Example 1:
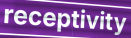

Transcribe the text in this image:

receptivity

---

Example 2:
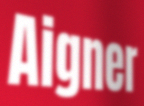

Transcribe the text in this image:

Aigner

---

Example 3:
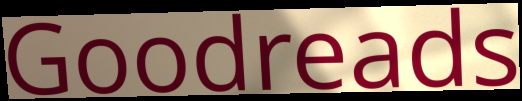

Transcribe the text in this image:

Goodreads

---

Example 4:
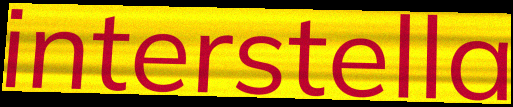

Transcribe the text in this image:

interstella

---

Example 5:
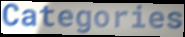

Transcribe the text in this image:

Categories